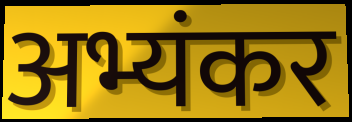
अभ्यंकर